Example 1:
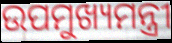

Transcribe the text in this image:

ଉପମୁଖ୍ୟମନ୍ତ୍ରୀ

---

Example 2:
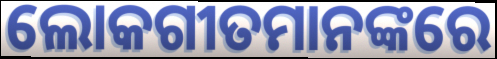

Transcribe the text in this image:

ଲୋକଗୀତମାନଙ୍କରେ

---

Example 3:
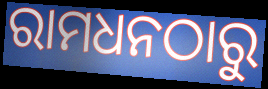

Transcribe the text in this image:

ରାମଧନଠାରୁ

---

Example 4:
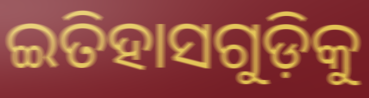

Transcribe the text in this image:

ଇତିହାସଗୁଡ଼ିକୁ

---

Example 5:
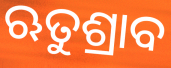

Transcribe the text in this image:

ଋତୁଶ୍ରାବ